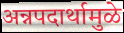
अन्नपदार्थामुळे